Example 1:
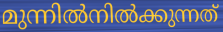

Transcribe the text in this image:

മുന്നിൽനിൽക്കുന്നത്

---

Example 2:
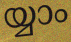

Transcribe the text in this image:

യ്യാം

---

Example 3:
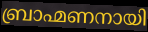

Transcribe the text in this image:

ബ്രാഹ്മണനായി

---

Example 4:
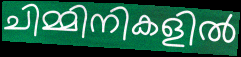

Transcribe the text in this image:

ചിമ്മിനികളിൽ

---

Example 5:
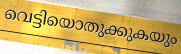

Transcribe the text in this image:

വെട്ടിയൊതുക്കുകയും